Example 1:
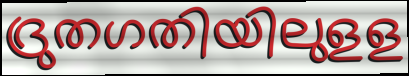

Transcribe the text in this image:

ദ്രുതഗതിയിലുളള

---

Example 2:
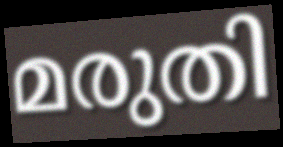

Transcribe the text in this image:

മരുതി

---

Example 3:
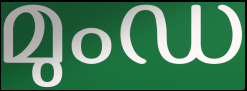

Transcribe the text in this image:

മുംഡ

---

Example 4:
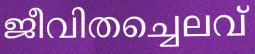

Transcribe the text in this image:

ജീവിതച്ചെലവ്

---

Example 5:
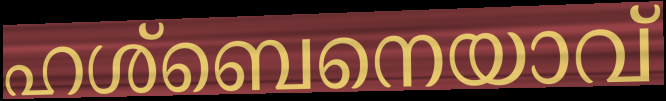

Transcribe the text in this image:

ഹശ്ബെനെയാവ്